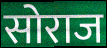
सोराज